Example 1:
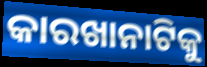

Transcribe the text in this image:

କାରଖାନାଟିକୁ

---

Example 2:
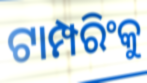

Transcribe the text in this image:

ଟାମ୍ପରିଂକୁ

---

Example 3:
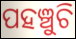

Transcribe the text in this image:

ପହଞ୍ଚୁଚି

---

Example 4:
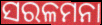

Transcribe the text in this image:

ସରଳମନା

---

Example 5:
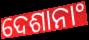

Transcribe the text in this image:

ଦେଶାନାଂ